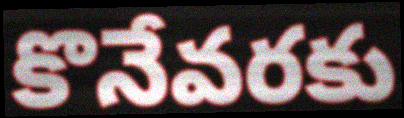
కొనేవరకు